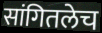
सांगितलेच